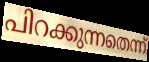
പിറക്കുന്നതെന്ന്